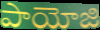
పాయోజి